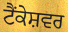
ਟੈਂਕੇਸ਼ਵਰ